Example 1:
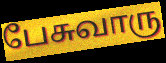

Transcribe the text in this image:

பேசுவாரு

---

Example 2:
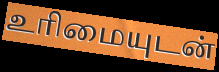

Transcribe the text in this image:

உரிமையுடன்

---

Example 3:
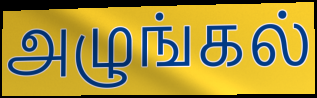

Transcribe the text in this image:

அழுங்கல்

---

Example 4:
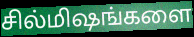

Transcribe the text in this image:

சில்மிஷங்களை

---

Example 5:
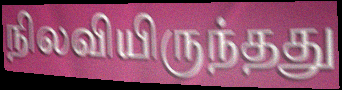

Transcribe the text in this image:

நிலவியிருந்தது